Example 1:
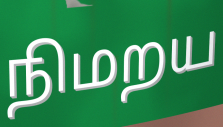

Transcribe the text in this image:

நிமறய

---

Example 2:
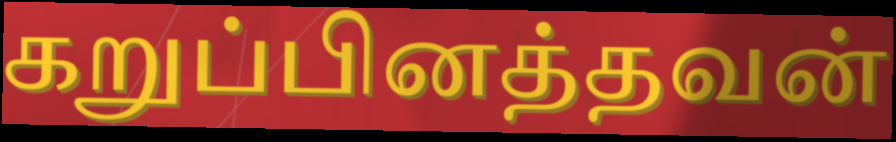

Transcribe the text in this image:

கறுப்பினத்தவன்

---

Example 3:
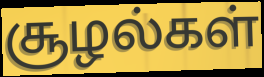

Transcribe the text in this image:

சூழல்கள்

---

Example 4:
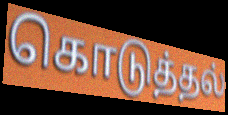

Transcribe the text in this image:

கொடுத்தல்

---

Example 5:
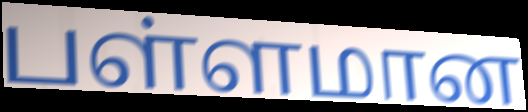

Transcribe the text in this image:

பள்ளமான